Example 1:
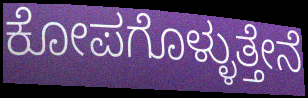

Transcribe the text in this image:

ಕೋಪಗೊಳ್ಳುತ್ತೇನೆ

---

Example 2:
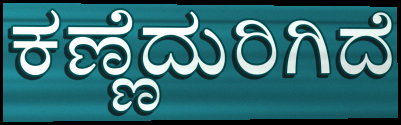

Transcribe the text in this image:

ಕಣ್ಣೆದುರಿಗಿದೆ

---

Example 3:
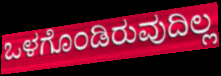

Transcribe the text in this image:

ಒಳಗೊಂಡಿರುವುದಿಲ್ಲ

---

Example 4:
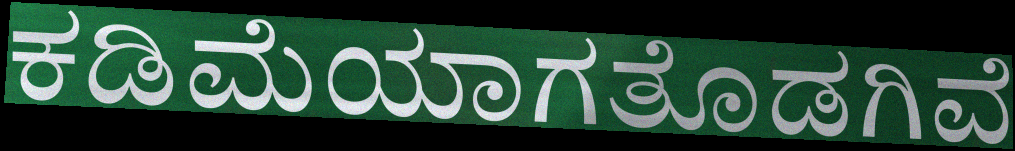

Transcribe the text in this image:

ಕಡಿಮೆಯಾಗತೊಡಗಿವೆ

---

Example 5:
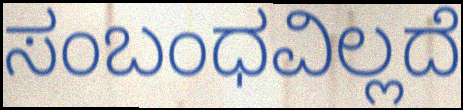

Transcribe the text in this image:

ಸಂಬಂಧವಿಲ್ಲದೆ